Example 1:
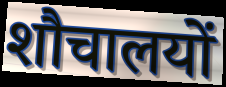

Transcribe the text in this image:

शौचालयों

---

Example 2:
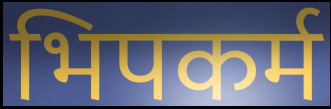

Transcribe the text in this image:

भिपकर्म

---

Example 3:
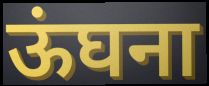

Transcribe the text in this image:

ऊंघना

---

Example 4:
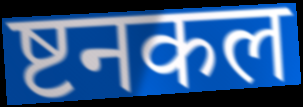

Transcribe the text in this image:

ष्टनकल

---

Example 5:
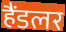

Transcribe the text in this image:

हैंडलर